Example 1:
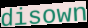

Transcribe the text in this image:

disown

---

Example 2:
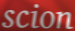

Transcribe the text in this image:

scion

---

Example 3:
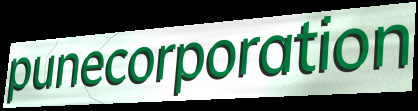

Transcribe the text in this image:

punecorporation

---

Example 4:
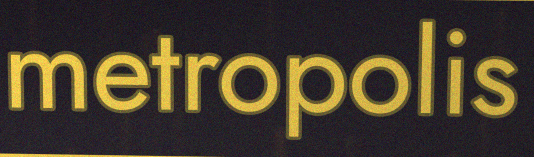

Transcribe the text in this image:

metropolis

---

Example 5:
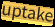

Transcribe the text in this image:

uptake